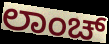
ಲಾಂಚ್